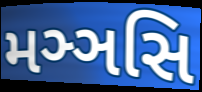
મઞ્ઞસિ